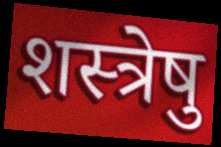
शस्त्रेषु